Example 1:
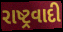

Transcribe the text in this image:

રાષ્ટ્રવાદી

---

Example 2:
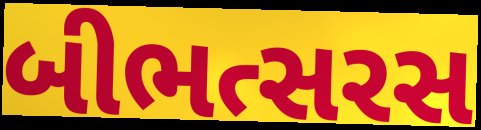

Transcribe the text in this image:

બીભત્સરસ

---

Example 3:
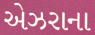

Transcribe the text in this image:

એઝરાના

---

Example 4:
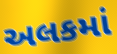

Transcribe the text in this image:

અલકમાં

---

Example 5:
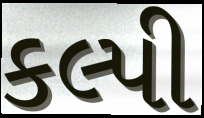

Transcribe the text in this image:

કલ્પી